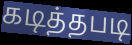
கடித்தபடி